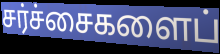
சர்ச்சைகளைப்